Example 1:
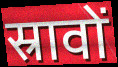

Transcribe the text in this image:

स्रावों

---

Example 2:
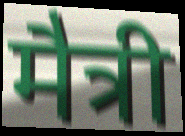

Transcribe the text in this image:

मैत्री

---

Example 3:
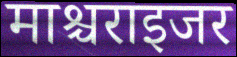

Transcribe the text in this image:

माश्चराइजर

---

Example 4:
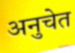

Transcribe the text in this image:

अनुचेत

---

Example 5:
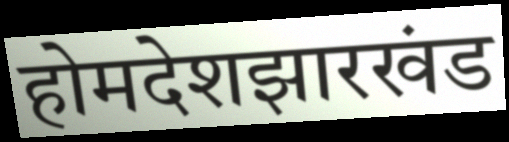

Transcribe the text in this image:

होमदेशझारखंड